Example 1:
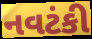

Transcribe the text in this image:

નવટંકી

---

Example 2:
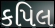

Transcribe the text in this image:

કપિલ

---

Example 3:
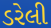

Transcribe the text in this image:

ડરેલી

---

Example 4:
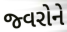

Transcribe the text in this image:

જ્વરોને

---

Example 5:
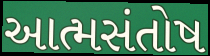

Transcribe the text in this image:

આત્મસંતોષ